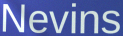
Nevins